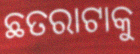
ଛତରାଟାକୁ